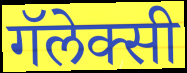
गॅलेक्सी